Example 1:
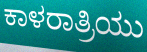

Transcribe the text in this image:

ಕಾಳರಾತ್ರಿಯು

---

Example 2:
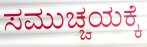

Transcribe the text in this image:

ಸಮುಚ್ಚಯಕ್ಕೆ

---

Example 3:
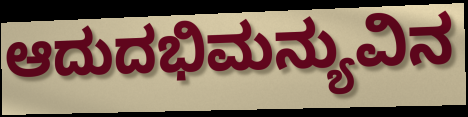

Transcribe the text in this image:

ಆದುದಭಿಮನ್ಯುವಿನ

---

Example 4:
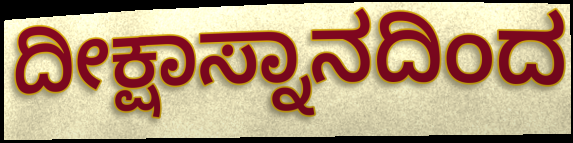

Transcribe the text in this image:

ದೀಕ್ಷಾಸ್ನಾನದಿಂದ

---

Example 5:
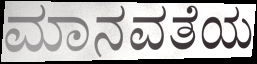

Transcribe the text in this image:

ಮಾನವತೆಯ